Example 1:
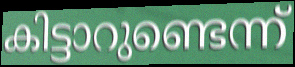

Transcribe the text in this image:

കിട്ടാറുണ്ടെന്ന്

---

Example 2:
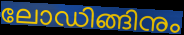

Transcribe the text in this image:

ലോഡിങ്ങിനും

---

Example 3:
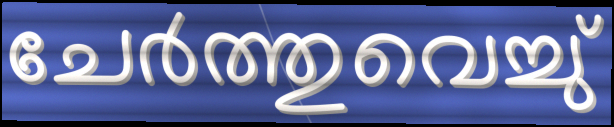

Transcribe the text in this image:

ചേർത്തുവെച്ചു്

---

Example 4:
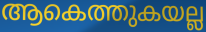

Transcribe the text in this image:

ആകെത്തുകയല്ല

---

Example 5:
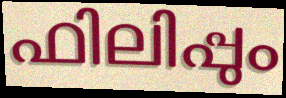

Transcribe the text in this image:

ഫിലിപ്പും